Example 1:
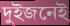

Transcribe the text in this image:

দুইজনেই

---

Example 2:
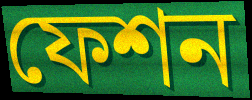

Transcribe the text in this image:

ফেশন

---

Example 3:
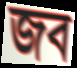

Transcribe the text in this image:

জব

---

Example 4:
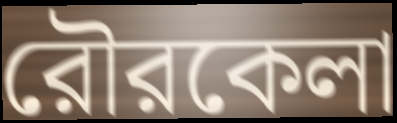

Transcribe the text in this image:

রৌরকেলা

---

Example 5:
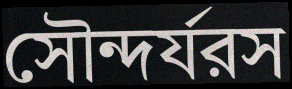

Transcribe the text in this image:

সৌন্দর্যরস